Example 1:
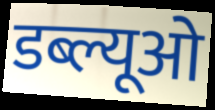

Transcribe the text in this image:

डब्ल्यूओ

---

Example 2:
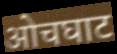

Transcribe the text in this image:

ओचघाट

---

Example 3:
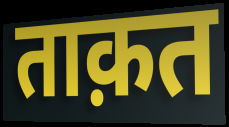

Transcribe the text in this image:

ताक़त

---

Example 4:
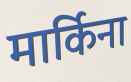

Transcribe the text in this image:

मार्किना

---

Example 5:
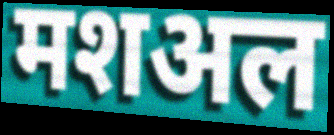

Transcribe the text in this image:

मशअल